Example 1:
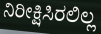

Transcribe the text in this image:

ನಿರೀಕ್ಷಿಸಿರಲಿಲ್ಲ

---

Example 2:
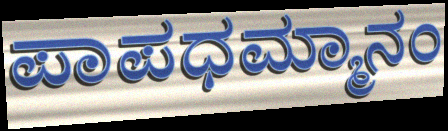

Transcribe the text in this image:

ಪಾಪಧಮ್ಮಾನಂ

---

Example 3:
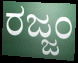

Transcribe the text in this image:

ರಜ್ಜಂ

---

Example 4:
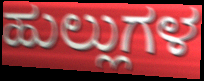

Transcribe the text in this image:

ಹುಲ್ಲುಗಳ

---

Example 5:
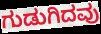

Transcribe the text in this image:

ಗುಡುಗಿದವು